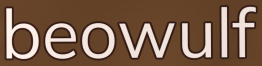
beowulf